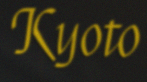
Kyoto